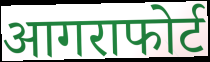
आगराफोर्ट